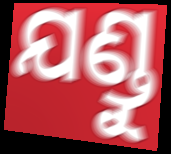
ଯଣ୍ଡୁ